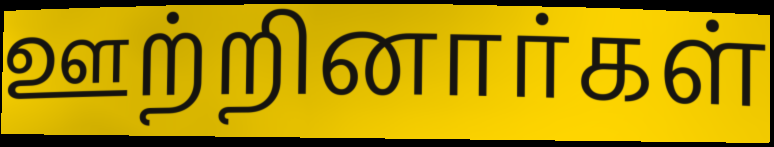
ஊற்றினார்கள்